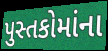
પુસ્તકોમાંના